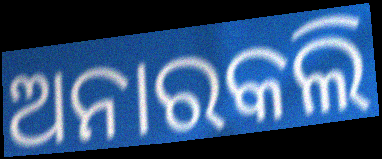
ଅନାରକଲି